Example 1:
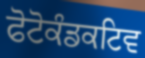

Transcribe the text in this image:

ਫੋਟੋਕੰਡਕਟਿਵ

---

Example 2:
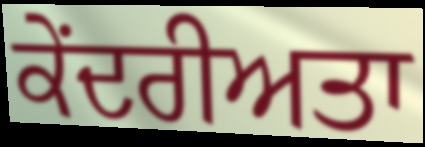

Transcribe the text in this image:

ਕੇਂਦਰੀਅਤਾ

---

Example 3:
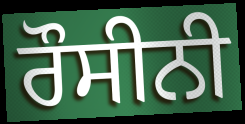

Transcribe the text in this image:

ਰੌਸੀਨੀ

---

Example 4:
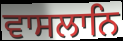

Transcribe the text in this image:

ਵਾਸਲਾਨਿ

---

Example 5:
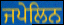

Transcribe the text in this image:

ਜਪੇਲਿਨ